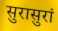
सुरासुरां